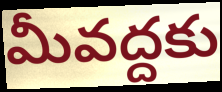
మీవద్దకు